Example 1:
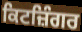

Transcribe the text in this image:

ਕਿਟਜ਼ਿੰਗਰ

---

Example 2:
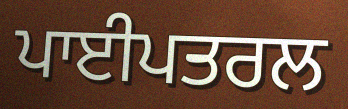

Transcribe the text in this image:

ਪਾਈਪਤਰਲ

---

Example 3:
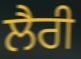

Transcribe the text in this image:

ਲੈਰੀ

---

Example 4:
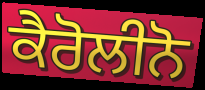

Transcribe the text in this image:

ਕੈਰੋਲੀਨੋ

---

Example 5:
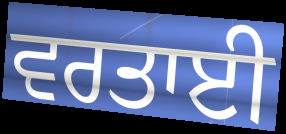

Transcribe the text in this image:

ਵਰਤਾਈ